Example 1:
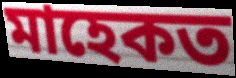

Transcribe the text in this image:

মাহেকত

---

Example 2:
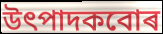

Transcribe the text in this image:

উৎপাদকবোৰ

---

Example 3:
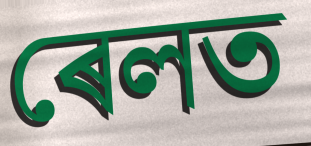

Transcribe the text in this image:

ৰেলত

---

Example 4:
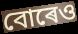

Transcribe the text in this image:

বোৰেও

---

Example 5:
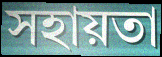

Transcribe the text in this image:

সহায়তা